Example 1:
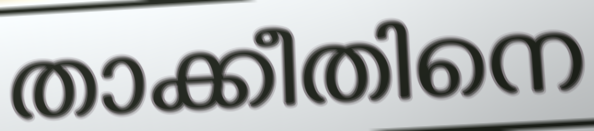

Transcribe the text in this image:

താക്കീതിനെ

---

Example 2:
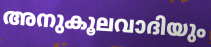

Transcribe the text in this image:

അനുകൂലവാദിയും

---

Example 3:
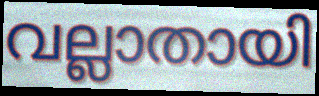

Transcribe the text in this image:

വല്ലാതായി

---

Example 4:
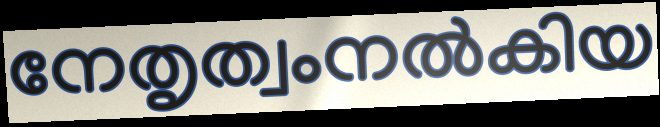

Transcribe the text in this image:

നേതൃത്വംനൽകിയ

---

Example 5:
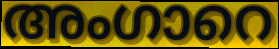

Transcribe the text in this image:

അംഗാറെ